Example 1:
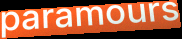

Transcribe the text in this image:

paramours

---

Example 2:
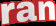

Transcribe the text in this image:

ran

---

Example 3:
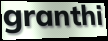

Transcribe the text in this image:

granthi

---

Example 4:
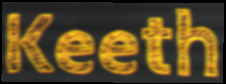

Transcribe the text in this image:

Keeth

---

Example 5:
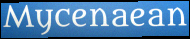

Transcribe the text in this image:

Mycenaean